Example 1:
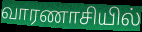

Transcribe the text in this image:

வாரணாசியில்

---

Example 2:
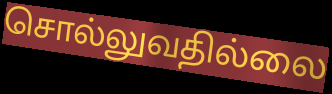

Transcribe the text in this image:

சொல்லுவதில்லை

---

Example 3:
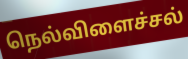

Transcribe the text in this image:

நெல்விளைச்சல்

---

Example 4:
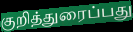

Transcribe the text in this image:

குறித்துரைப்பது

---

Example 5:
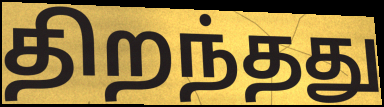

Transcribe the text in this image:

திறந்தது